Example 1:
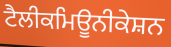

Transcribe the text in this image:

ਟੈਲੀਕਮਿਊਨੀਕੇਸ਼ਨ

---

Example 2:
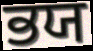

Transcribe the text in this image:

ਭਯ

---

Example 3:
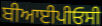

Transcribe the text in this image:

ਬੀਆਈਪੀਓਸੀ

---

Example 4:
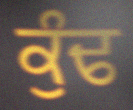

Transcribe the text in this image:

ਕੁੰਢ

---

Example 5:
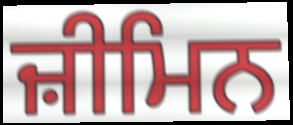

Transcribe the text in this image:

ਜ਼ੀਮਿਨ